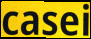
casei